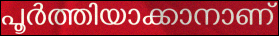
പൂർത്തിയാക്കാനാണ്